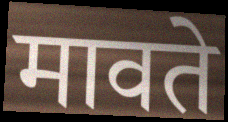
मावते